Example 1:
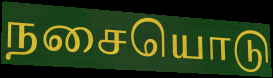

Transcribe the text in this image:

நசையொடு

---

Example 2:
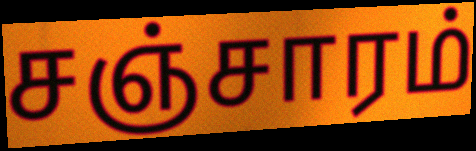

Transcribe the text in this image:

சஞ்சாரம்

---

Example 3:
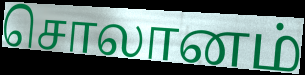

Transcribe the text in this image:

சொலானம்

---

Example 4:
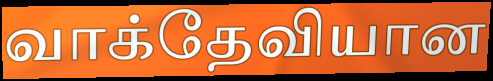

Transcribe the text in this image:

வாக்தேவியான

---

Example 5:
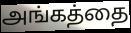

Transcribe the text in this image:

அங்கத்தை